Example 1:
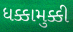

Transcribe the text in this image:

ધક્કામુક્કી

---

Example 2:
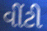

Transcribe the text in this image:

વીંટી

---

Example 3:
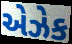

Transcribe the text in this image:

એઝેક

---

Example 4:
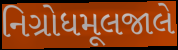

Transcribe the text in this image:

નિગ્રોધમૂલજાલે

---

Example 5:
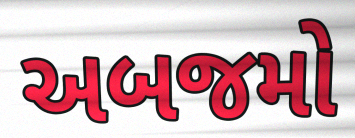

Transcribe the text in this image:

અબજમો